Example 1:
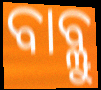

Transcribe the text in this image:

ବାବ୍ଲୁ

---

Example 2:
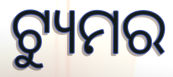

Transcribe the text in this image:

ଟ୍ୟୁମର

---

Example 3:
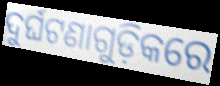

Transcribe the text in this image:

ଦୁର୍ଘଟଣାଗୁଡ଼ିକରେ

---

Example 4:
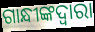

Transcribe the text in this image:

ଗାନ୍ଧୀଙ୍କଦ୍ଵାରା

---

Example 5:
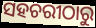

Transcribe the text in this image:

ସହଚରୀଠାରୁ